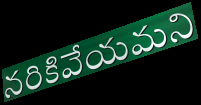
నరికివేయమని